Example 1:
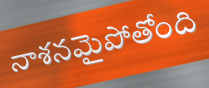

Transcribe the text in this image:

నాశనమైపోతోంది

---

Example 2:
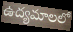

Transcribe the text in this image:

ఉద్యమాలలో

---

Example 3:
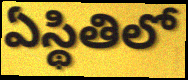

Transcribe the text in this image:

ఏస్థితిలో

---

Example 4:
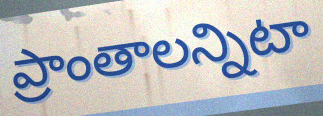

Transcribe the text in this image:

ప్రాంతాలన్నిటా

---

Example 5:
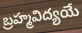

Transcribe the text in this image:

బ్రహ్మవిద్యయే